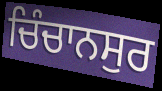
ਚਿੰਚਾਨਸੁਰ